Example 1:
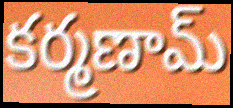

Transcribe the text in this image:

కర్మణామ్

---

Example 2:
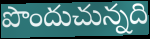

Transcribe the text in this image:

పొందుచున్నది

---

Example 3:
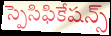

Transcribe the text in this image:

స్పెసిఫికేషన్స్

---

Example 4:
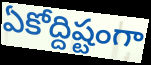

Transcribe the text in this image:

ఏకోద్దిష్టంగా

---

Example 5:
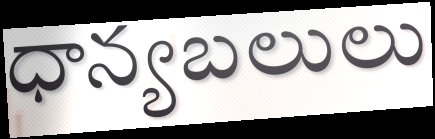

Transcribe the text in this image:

ధాన్యబలులు